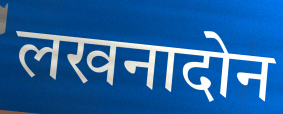
लखनादोन